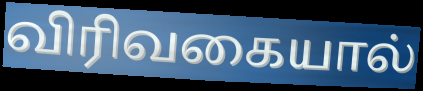
விரிவகையால்